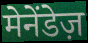
मेनेंडेज़